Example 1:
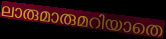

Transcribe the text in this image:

ലാരുമാരുമറിയാതെ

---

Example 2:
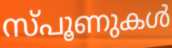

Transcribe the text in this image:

സ്പൂണുകൾ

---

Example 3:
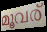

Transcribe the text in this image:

മൂവര്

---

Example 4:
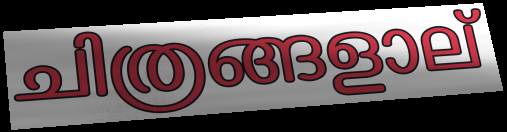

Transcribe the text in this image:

ചിത്രങ്ങളാല്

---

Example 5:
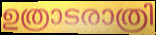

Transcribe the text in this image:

ഉത്രാടരാത്രി